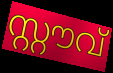
സ്റ്റൗവ്